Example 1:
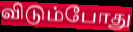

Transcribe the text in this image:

விடும்போது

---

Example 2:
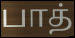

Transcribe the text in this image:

பாத்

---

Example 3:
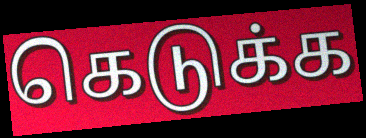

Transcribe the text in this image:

கெடுக்க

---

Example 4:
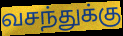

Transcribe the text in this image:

வசந்துக்கு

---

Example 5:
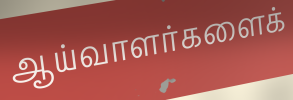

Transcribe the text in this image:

ஆய்வாளர்களைக்